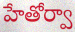
హేతోర్వా